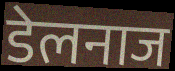
डेलनाज